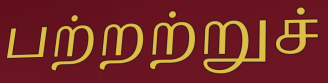
பற்றற்றுச்